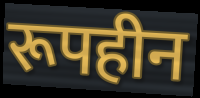
रूपहीन